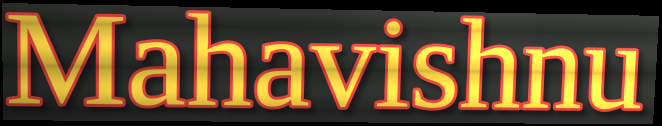
Mahavishnu